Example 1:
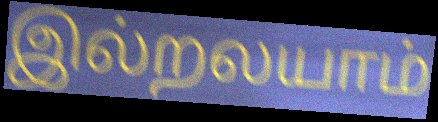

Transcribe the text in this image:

இல்றலயாம்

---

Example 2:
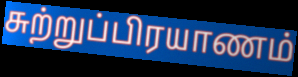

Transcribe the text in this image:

சுற்றுப்பிரயாணம்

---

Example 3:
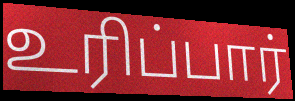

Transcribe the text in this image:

உரிப்பார்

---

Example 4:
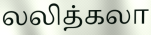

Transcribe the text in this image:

லலித்கலா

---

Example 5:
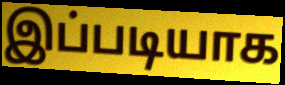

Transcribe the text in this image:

இப்படியாக